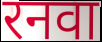
रनवा